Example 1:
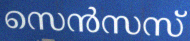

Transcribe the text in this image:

സെൻസസ്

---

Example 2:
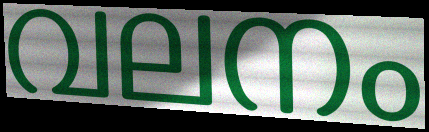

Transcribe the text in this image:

വലനം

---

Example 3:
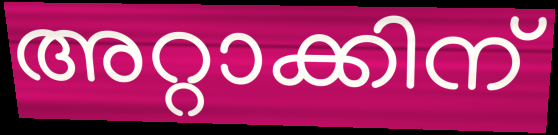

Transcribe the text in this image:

അറ്റാക്കിന്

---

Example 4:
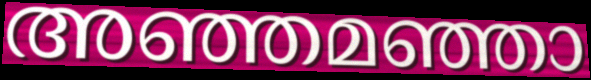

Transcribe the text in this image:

അഞ്ഞമഞ്ഞാ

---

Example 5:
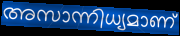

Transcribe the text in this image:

അസാന്നിധ്യമാണ്